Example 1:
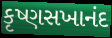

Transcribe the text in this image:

કૃષ્ણસખાનંદ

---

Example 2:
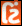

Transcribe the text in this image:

ટિં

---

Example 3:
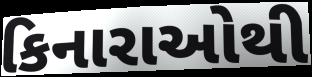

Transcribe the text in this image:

કિનારાઓથી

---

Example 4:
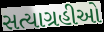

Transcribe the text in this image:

સત્યાગ્રહીઓ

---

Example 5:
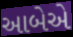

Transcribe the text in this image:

આબેએ